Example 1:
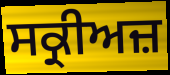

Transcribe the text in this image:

ਸਕ੍ਰੀਅਜ਼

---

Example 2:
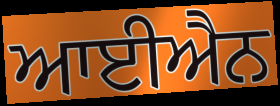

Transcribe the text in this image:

ਆਈਐਨ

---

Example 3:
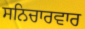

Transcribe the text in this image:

ਸਨਿਚਾਰਵਾਰ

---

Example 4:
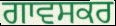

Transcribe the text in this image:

ਗਾਵਸਕਰ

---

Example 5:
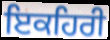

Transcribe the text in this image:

ਇਕਹਿਰੀ